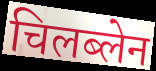
चिलब्लेन